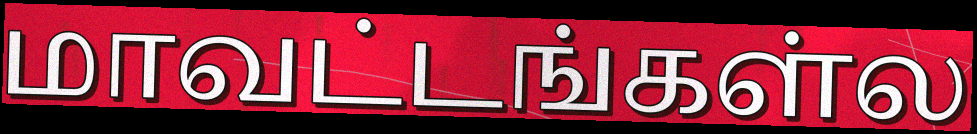
மாவட்டங்கள்ல